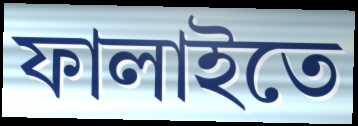
ফালাইতে